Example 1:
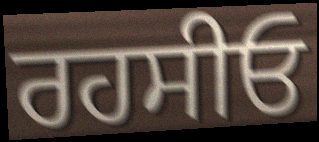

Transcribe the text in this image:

ਰਹਸੀਓ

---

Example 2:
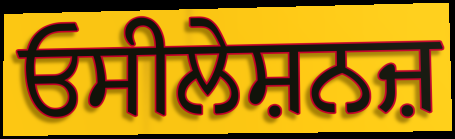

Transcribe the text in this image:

ਓਸੀਲੇਸ਼ਨਜ਼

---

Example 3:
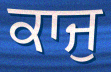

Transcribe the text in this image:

ਕਾਜੁ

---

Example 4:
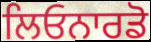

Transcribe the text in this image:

ਲਿਓਨਾਰਡੋ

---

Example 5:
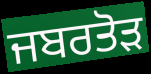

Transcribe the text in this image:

ਜਬਰਤੋੜ